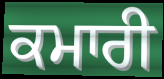
ਕਮਾਰੀ